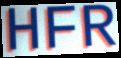
HFR